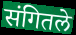
संगितले